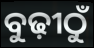
ବୁଢ଼ୀଠୁଁ